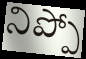
నిప్పో